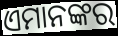
ଏମାନଙ୍କର